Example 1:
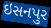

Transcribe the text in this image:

ઇસનપુર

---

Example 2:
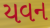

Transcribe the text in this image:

યવન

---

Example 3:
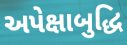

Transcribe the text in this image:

અપેક્ષાબુદ્ધિ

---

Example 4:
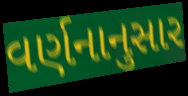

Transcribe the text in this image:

વર્ણનાનુસાર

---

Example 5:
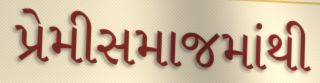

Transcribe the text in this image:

પ્રેમીસમાજમાંથી